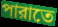
পারাতে